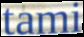
tami